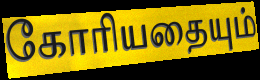
கோரியதையும்